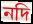
নদি